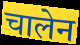
चालेन